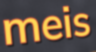
meis